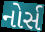
નોર્સ